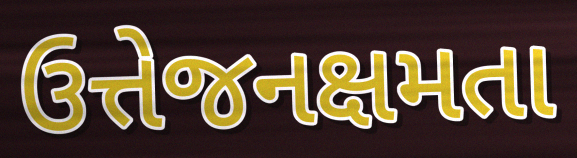
ઉત્તેજનક્ષમતા